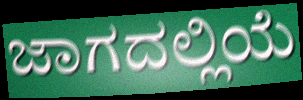
ಜಾಗದಲ್ಲಿಯೆ